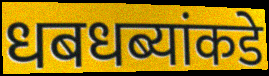
धबधब्यांकडे